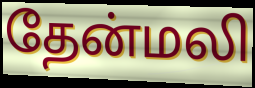
தேன்மலி